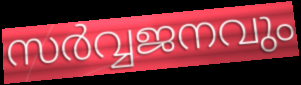
സർവ്വജനവും